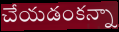
చేయడంకన్నా